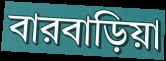
বারবাড়িয়া